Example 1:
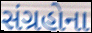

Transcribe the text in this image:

સંગ્રહોના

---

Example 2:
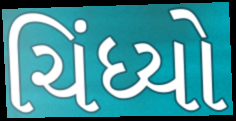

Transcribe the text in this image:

ચિંધ્યો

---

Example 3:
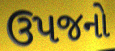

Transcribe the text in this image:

ઉપજનો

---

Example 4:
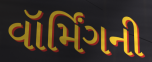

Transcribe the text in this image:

વૉર્મિંગની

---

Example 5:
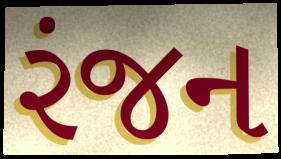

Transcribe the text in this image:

રંજન